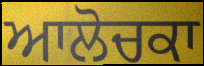
ਆਲੋਚਕਾ